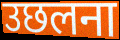
उछलना